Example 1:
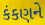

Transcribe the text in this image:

કંકણને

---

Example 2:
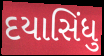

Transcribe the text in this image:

દયાસિંધુ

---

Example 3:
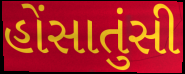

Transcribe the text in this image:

હોંસાતુંસી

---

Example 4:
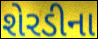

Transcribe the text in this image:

શેરડીના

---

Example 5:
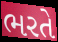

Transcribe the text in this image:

ભરતે